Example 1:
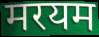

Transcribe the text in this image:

मरयम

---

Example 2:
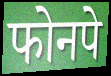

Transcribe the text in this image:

फोनपे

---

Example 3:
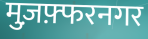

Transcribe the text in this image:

मुज़फ़्फरनगर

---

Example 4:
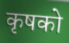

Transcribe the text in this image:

कृषको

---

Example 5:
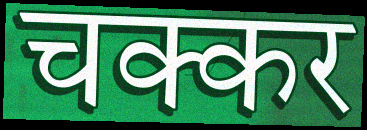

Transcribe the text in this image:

चक्‍कर